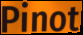
Pinot